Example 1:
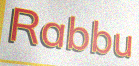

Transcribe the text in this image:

Rabbu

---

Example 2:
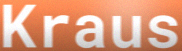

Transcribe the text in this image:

Kraus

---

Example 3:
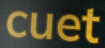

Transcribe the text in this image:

cuet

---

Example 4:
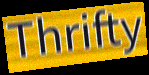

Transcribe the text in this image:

Thrifty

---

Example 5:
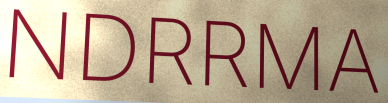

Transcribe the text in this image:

NDRRMA